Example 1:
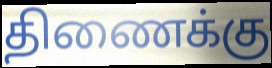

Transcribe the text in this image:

திணைக்கு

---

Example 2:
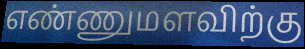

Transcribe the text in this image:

எண்ணுமளவிற்கு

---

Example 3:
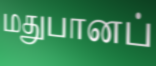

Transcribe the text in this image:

மதுபானப்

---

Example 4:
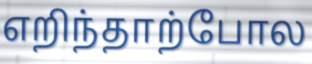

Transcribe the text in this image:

எறிந்தாற்போல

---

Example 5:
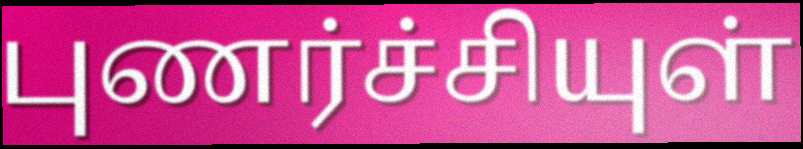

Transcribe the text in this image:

புணர்ச்சியுள்